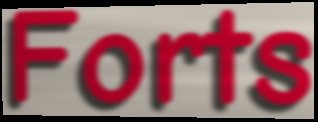
Forts